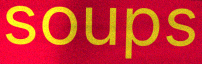
soups